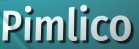
Pimlico